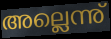
അല്ലെന്നു്